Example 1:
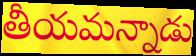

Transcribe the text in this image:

తీయమన్నాడు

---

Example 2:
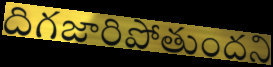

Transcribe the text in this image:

దిగజారిపోతుందని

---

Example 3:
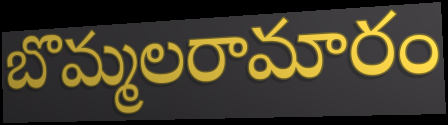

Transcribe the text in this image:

బొమ్మలరామారం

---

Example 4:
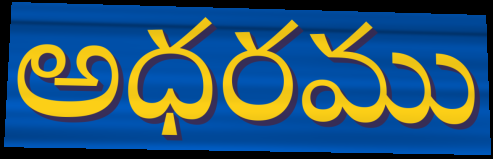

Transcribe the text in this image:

అధరము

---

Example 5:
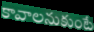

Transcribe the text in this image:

కావాలనుకుంటే